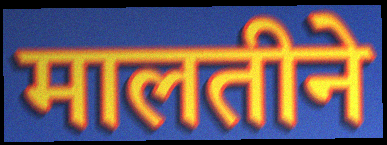
मालतीने